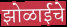
झोळाईचे